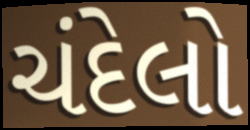
ચંદેલો